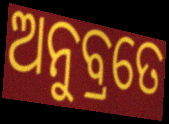
ଅନୁବ୍ରତେ